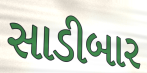
સાડીબાર